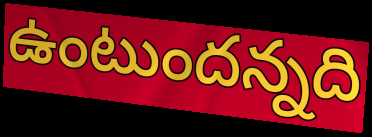
ఉంటుందన్నది